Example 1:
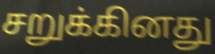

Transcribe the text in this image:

சறுக்கினது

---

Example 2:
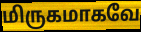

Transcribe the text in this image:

மிருகமாகவே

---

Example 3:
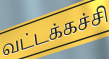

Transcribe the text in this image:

வட்டக்கச்சி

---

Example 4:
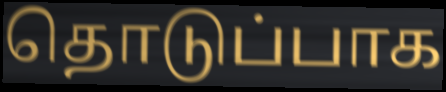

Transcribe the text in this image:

தொடுப்பாக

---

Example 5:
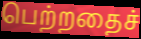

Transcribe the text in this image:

பெற்றதைச்